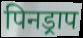
पिनड्राप